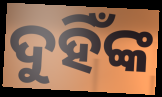
ଦୁହିଁଙ୍କ